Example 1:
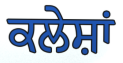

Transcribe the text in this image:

ਕਲੇਸ਼ਾਂ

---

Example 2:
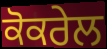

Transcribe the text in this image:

ਕੋਕਰੇਲ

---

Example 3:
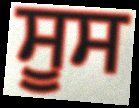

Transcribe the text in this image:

ਸੂਸ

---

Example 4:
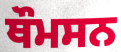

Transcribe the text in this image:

ਥੌਮਸਨ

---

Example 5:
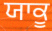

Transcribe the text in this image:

ਯਾਕੂ